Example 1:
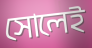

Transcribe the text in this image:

সোলেই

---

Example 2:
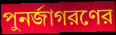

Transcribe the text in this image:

পুনর্জাগরণের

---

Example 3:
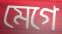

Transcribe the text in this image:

মেগে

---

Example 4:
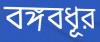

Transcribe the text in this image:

বঙ্গবধূর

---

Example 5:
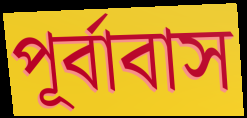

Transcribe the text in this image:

পূর্বাবাস